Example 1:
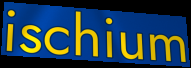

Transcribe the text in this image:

ischium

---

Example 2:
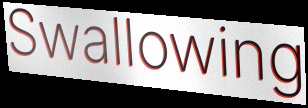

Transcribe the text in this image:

Swallowing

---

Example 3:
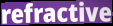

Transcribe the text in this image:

refractive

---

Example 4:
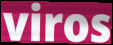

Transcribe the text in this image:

viros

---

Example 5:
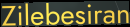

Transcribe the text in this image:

Zilebesiran